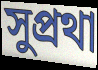
সুপ্রথা